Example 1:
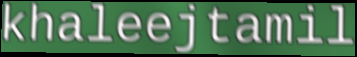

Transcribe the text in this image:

khaleejtamil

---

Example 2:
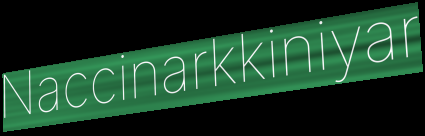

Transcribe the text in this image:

Naccinarkkiniyar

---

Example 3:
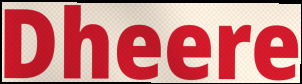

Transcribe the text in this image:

Dheere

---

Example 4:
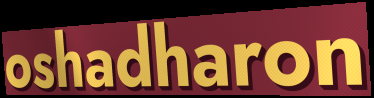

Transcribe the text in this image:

oshadharon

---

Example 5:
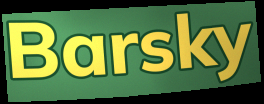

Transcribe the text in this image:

Barsky